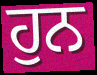
ਹੁਨ